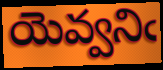
యెవ్వనిఁ